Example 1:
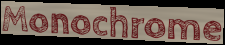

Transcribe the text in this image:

Monochrome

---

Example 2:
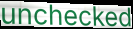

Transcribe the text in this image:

unchecked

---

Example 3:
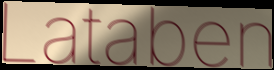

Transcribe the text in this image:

Lataben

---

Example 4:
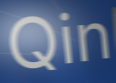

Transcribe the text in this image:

Qin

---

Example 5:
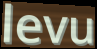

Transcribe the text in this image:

levu